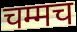
चम्मच